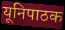
यूनिपाठक